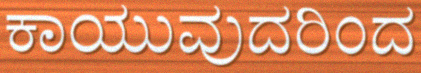
ಕಾಯುವುದರಿಂದ